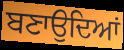
ਬਣਾਉਦਿਆਂ